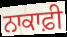
ਨਾਕਾਫ਼ੀ